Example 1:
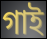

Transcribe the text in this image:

গাই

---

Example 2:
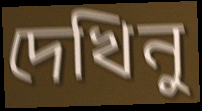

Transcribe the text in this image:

দেখিনু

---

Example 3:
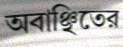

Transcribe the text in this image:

অবাঞ্ছিতের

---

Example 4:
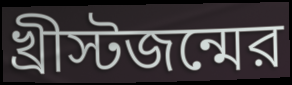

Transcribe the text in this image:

খ্রীস্টজন্মের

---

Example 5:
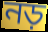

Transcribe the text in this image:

নড়